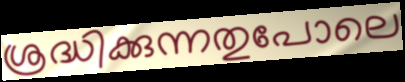
ശ്രദ്ധിക്കുന്നതുപോലെ